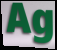
Ag